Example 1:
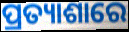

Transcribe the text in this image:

ପ୍ରତ୍ୟାଶାରେ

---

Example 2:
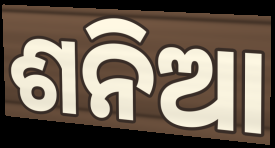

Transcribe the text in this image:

ଶନିଆ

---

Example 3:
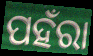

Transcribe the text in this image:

ପହଁରା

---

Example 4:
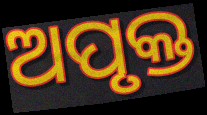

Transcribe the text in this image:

ଅପୃକ୍ତ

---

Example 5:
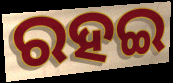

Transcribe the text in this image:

ରହଇ